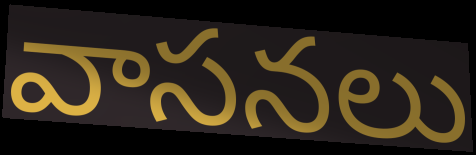
వాసనలు